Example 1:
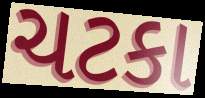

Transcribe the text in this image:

ચટકા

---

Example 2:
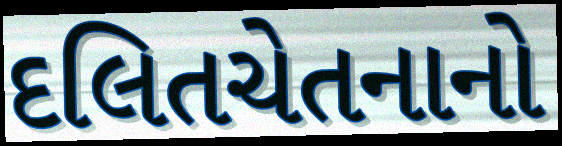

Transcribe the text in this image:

દલિતચેતનાનો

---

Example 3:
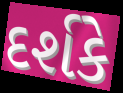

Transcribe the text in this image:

દર્શકે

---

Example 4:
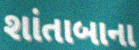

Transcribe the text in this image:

શાંતાબાના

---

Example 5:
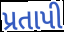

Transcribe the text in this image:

પ્રતાપી